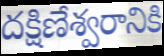
దక్షిణేశ్వరానికి